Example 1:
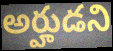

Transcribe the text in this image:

అర్హుడని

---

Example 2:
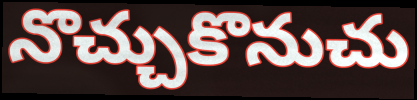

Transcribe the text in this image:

నొచ్చుకొనుచు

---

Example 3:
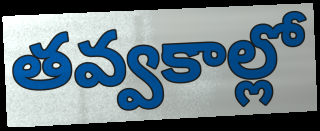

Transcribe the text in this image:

తవ్వకాల్లో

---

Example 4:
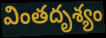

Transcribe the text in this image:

వింతదృశ్యం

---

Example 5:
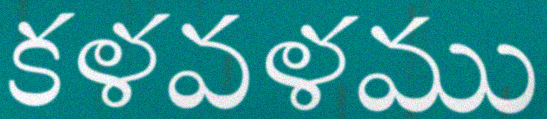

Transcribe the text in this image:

కళవళము